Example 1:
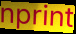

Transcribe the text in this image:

nprint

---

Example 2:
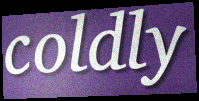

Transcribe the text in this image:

coldly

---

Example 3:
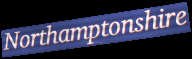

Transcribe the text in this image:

Northamptonshire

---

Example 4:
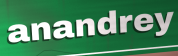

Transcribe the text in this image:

anandrey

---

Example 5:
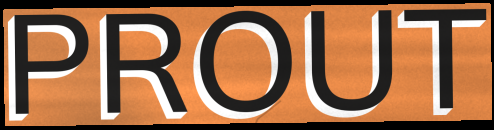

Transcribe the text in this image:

PROUT